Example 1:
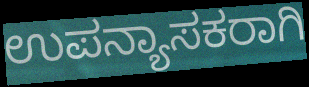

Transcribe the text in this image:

ಉಪನ್ಯಾಸಕರಾಗಿ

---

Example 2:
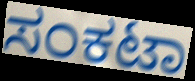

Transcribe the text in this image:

ಸಂಕಟಾ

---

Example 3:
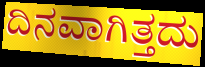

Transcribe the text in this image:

ದಿನವಾಗಿತ್ತದು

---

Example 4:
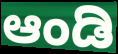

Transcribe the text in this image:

ಆಂಡಿ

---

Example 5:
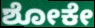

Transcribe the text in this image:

ಶೋಕೇ